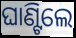
ଘାଣ୍ଟିଲେ